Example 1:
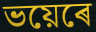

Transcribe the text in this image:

ভয়েৰে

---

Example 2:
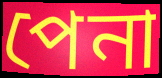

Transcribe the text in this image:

পেনা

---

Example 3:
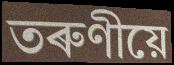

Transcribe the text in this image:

তৰুণীয়ে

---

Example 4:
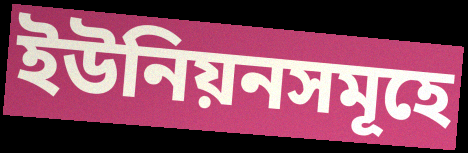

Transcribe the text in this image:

ইউনিয়নসমূহে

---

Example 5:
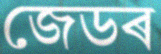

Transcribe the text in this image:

জেডৰ